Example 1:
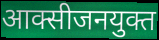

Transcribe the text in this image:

आक्सीजनयुक्त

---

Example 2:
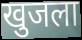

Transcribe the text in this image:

खुजला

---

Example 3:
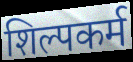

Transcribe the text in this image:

शिल्पकर्म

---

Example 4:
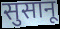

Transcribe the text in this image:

सुसानू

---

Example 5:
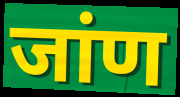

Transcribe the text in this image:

जांण